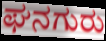
ಘನಗುರು